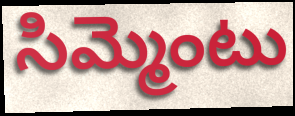
సిమ్మెంటు